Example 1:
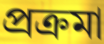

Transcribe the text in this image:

প্রক্রমা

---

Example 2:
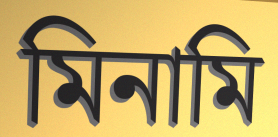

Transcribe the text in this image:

মিনামি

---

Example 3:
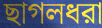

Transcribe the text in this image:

ছাগলধরা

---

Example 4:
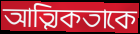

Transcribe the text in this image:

আত্মিকতাকে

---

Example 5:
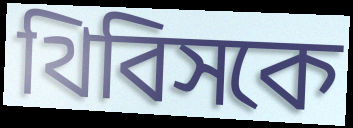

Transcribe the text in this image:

থিবিসকে